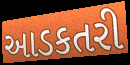
આડકતરી